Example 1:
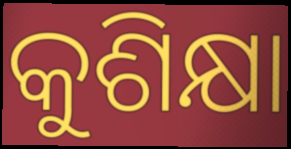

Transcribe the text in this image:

କୁଶିକ୍ଷା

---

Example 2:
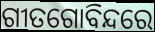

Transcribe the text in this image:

ଗୀତଗୋବିନ୍ଦରେ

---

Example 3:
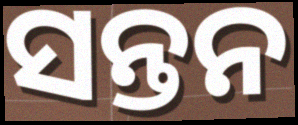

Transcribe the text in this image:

ସନ୍ତନ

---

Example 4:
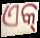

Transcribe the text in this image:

ଏକ୍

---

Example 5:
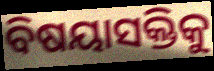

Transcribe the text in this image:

ବିଷୟାସକ୍ତିକୁ